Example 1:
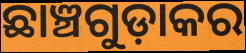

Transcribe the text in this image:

ଛାଞ୍ଚଗୁଡ଼ାକର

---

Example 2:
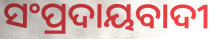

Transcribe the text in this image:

ସଂପ୍ରଦାୟବାଦୀ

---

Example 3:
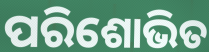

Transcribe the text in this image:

ପରିଶୋଭିତ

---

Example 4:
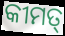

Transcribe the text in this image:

କୀମତ୍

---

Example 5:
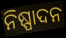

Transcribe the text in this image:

ନିଷ୍ପାଦନ